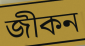
জীকন